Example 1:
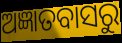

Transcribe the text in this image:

ଅଜ୍ଞାତବାସରୁ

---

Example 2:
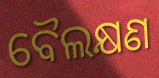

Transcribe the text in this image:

ବୈଲକ୍ଷଣ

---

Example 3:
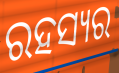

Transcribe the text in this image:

ରହସ୍ୟର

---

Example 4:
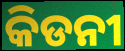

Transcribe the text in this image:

କିଡନୀ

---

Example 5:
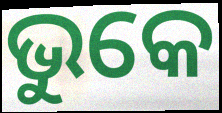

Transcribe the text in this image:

ଭୁକେ